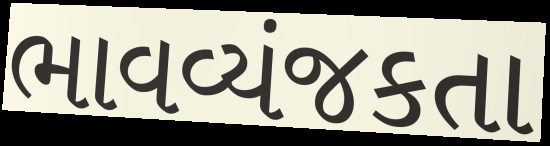
ભાવવ્યંજકતા